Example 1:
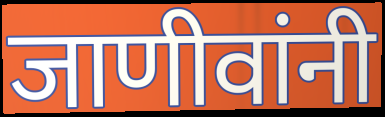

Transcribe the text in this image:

जाणीवांनी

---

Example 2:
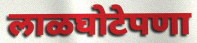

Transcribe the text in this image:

लाळघोटेपणा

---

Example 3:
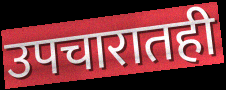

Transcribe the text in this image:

उपचारातही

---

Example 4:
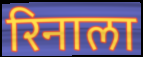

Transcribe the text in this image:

रिनाला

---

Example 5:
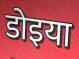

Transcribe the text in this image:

डोइया